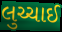
લુચ્ચાઈ